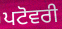
ਪਟੋਵਰੀ